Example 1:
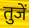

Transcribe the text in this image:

तुजें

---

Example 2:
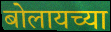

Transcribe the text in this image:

बोलायच्या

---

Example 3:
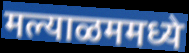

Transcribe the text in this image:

मल्याळममध्ये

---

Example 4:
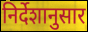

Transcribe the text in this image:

निर्देशानुसार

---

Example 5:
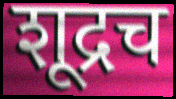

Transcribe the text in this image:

शूद्रच